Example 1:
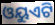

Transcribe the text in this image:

ଓୟୁଏଟି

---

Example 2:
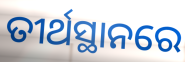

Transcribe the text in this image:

ତୀର୍ଥସ୍ଥାନରେ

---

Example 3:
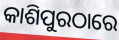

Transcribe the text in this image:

କାଶିପୁରଠାରେ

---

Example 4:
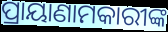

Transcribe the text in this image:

ପ୍ରାୟାଣାମକାରୀଙ୍କ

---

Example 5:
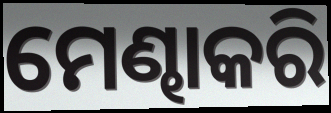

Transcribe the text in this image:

ମେଣ୍ଢାକରି